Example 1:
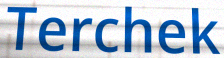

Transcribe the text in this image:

Terchek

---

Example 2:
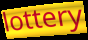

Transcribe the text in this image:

lottery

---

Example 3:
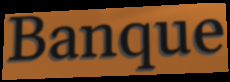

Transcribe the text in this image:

Banque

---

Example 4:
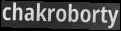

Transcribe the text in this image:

chakroborty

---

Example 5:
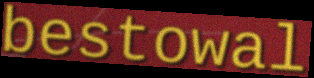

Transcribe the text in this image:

bestowal